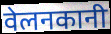
वेलनकानी